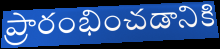
ప్రారంభించడానికి